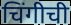
चिंगीची